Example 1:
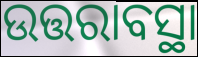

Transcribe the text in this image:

ଉତ୍ତରାବସ୍ଥା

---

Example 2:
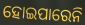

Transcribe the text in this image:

ହୋଇପାରେନି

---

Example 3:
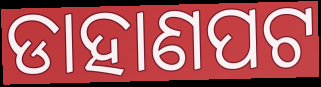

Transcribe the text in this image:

ଡାହାଣପଟ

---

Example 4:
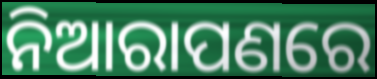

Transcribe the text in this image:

ନିଆରାପଣରେ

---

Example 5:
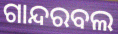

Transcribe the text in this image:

ଗାନ୍ଦରବଲ